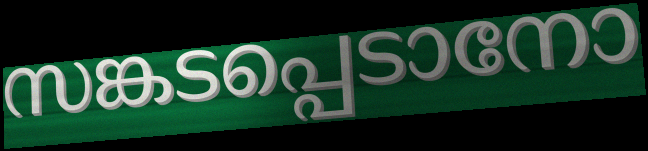
സങ്കടപ്പെടാനോ